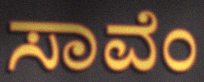
ಸಾವೆಂ